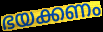
ഭയക്കണം